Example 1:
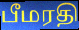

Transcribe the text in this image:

பீமரதி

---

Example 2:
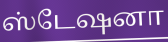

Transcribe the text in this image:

ஸ்டேஷனா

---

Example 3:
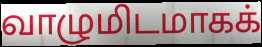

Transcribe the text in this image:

வாழுமிடமாகக்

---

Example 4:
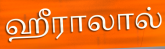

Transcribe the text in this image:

ஹீராலால்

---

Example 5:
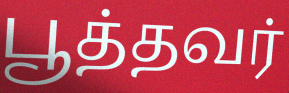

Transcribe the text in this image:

பூத்தவர்